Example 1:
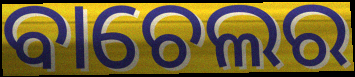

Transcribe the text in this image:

ବାଚେଲର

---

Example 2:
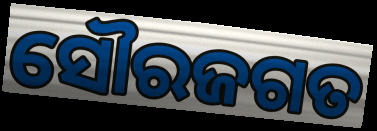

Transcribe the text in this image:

ସୌରଜଗତ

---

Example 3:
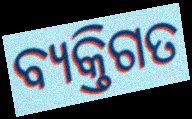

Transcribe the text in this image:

ବ୍ୟକ୍ତିଗତ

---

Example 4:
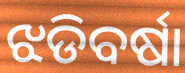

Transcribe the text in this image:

ଝଡିବର୍ଷା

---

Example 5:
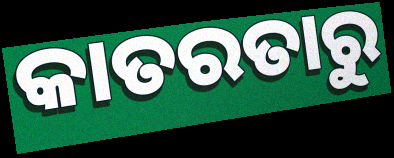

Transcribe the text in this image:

କାତରତାରୁ